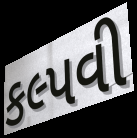
કલ્પવી